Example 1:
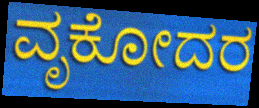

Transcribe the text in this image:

ವೃಕೋದರ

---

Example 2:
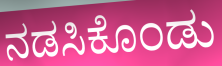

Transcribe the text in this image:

ನಡಸಿಕೊಂಡು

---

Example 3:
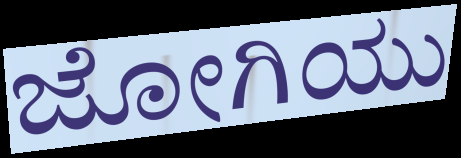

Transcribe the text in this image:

ಜೋಗಿಯು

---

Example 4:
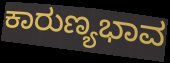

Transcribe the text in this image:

ಕಾರುಣ್ಯಭಾವ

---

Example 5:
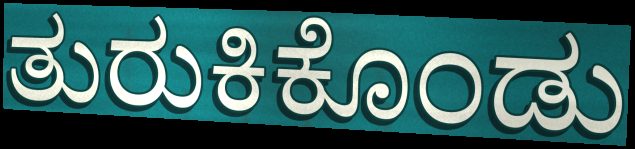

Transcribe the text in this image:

ತುರುಕಿಕೊಂಡು